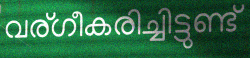
വര്ഗീകരിച്ചിട്ടുണ്ട്